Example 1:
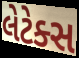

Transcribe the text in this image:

લેટેક્સ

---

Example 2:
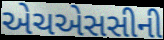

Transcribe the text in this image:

એચએસસીની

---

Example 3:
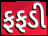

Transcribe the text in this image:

ફફડી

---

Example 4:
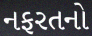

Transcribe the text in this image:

નફરતનો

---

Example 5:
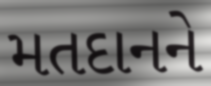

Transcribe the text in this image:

મતદાનને